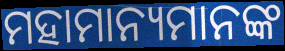
ମହାମାନ୍ୟମାନଙ୍କ